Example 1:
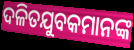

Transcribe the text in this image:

ଦଳିତଯୁବକମାନଙ୍କ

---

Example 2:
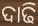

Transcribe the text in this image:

ଦାଢି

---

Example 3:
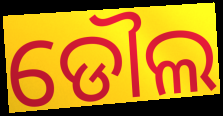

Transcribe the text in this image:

ଡୌଲ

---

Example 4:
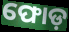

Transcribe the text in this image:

ଫୋଡ଼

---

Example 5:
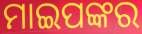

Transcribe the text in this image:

ମାଇପଙ୍କର